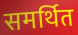
समर्थित